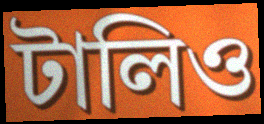
টালিও